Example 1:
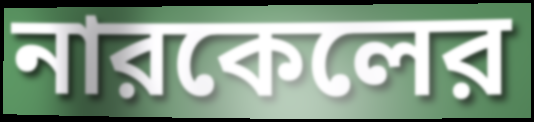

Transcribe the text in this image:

নারকেলের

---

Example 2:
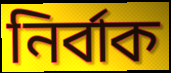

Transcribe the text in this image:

নির্বাক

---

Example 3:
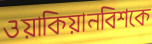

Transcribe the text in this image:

ওয়াকিয়ানবিশকে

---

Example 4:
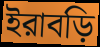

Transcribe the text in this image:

ইরাবড়ি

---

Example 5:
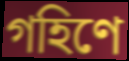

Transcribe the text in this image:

গহিণে